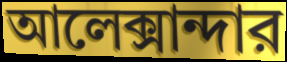
আলেক্সান্দার